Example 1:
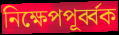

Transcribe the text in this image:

নিক্ষেপপূর্ব্বক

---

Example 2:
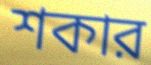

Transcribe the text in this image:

শকার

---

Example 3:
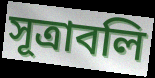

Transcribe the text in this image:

সূত্রাবলি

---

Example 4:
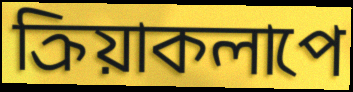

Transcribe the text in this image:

ক্রিয়াকলাপে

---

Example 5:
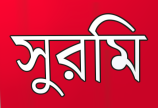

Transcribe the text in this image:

সুরমি